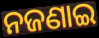
ନଜଣାଇ